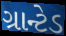
ગ્રાન્ટેડ